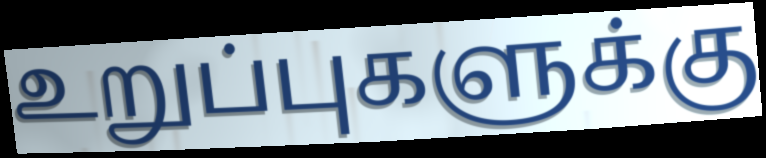
உறுப்புகளுக்கு